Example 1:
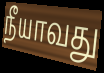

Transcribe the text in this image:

நீயாவது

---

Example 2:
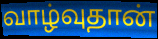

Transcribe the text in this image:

வாழ்வுதான்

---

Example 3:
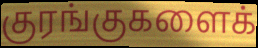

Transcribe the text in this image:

குரங்குகளைக்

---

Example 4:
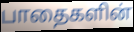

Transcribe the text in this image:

பாதைகளின்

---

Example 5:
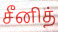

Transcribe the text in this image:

சீனித்